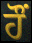
ਹੌਂ